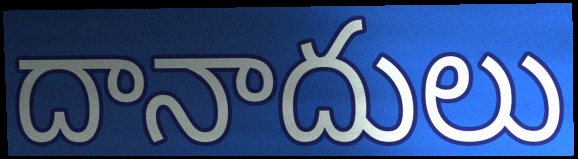
దానాదులు